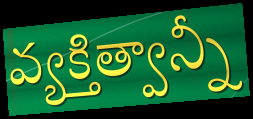
వ్యక్తిత్వాన్నీ